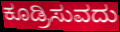
ಕೂಡ್ರಿಸುವದು